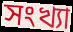
সংখ্যা